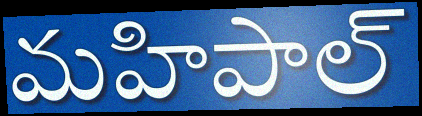
మహిపాల్